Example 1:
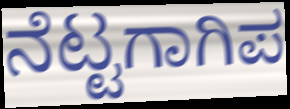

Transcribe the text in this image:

ನೆಟ್ಟಗಾಗಿಪ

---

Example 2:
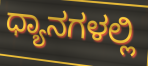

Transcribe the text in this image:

ಧ್ಯಾನಗಳಲ್ಲಿ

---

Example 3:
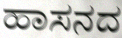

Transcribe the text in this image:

ಹಾಸನದ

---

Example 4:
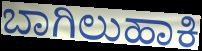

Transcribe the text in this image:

ಬಾಗಿಲುಹಾಕಿ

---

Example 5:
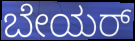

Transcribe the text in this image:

ಬೇಯರ್